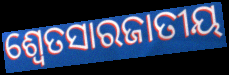
ଶ୍ଵେତସାରଜାତୀୟ